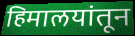
हिमालयांतून